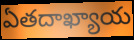
ఏతదాఖ్యాయ